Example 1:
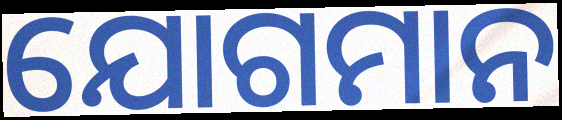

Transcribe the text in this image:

ଯୋଗମାନ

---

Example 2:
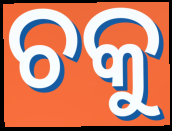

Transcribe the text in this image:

ଚକୁ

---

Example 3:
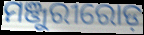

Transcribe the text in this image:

ମଞ୍ଜୁରୀରୋଡ଼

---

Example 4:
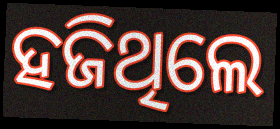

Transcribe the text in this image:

ହଜିଥିଲେ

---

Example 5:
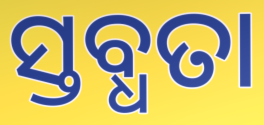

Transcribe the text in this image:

ସ୍ତବ୍ଧତା